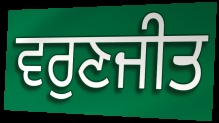
ਵਰੁਣਜੀਤ